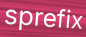
sprefix